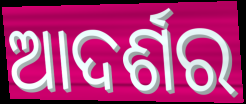
ଆଦର୍ଶର